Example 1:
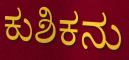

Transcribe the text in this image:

ಕುಶಿಕನು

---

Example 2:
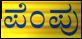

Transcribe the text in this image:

ಪೆಂಪು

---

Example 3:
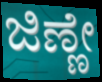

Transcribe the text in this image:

ಜಿಣ್ಣೇ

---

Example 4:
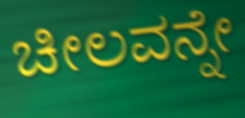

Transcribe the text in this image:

ಚೀಲವನ್ನೇ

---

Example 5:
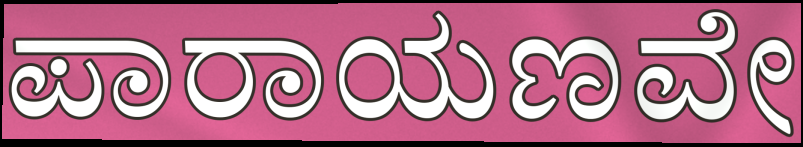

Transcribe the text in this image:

ಪಾರಾಯಣವೇ